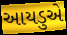
આયડુએ